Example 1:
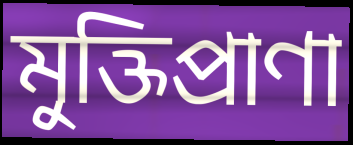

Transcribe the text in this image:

মুক্তিপ্রাণা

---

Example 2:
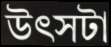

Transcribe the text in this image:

উৎসটা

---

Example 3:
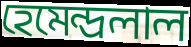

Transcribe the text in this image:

হেমেন্দ্রলাল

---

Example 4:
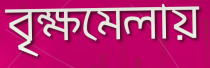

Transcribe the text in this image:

বৃক্ষমেলায়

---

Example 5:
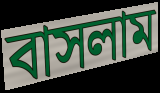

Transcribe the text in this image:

বাসলাম